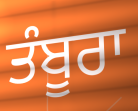
ਤੰਬੂਰਾ